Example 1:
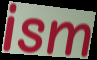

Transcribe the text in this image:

ism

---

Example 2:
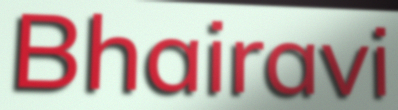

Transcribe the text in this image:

Bhairavi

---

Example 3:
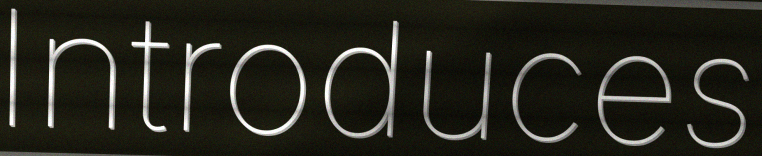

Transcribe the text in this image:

Introduces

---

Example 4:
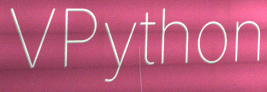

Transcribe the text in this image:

VPython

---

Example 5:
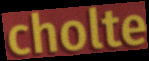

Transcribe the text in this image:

cholte